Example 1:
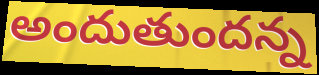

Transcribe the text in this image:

అందుతుందన్న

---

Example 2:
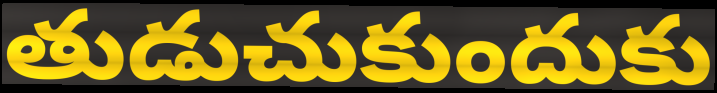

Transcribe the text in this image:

తుడుచుకుందుకు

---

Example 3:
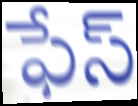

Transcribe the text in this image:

ఫేస్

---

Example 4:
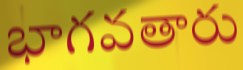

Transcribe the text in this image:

భాగవతారు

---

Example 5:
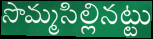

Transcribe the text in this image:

సొమ్మసిల్లినట్టు